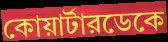
কোয়ার্টারডেকে